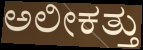
ಅಲೀಕತ್ತು